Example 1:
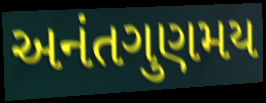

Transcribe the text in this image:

અનંતગુણમય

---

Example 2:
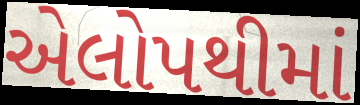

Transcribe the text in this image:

એલોપથીમાં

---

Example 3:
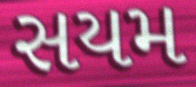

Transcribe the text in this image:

સયમ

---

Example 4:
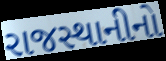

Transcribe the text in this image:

રાજસ્થાનીનો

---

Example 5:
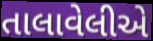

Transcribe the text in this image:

તાલાવેલીએ